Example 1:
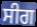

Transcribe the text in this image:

ਸੀਗ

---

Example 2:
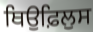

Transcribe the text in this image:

ਥਿਉਫ਼ਿਲੁਸ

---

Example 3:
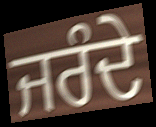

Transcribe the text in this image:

ਜਰੰਦੇ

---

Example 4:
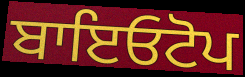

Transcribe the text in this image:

ਬਾਇਓਟੋਪ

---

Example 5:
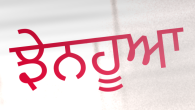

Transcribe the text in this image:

ਝੇਨਹੂਆ